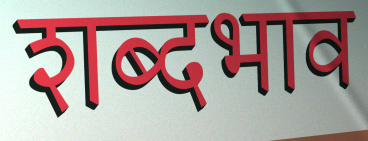
शब्दभाव